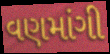
વણમાંગી